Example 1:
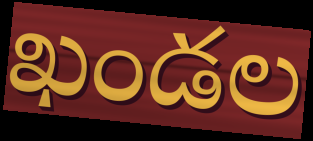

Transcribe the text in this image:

ఖండల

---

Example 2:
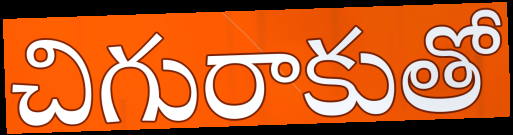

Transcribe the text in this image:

చిగురాకుతో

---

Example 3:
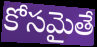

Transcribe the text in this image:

కోసమైతే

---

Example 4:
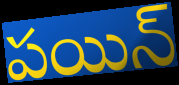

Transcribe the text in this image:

పయిన్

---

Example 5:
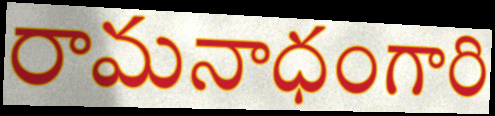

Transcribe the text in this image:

రామనాధంగారి